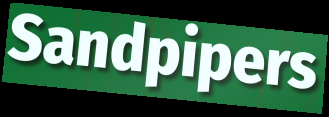
Sandpipers